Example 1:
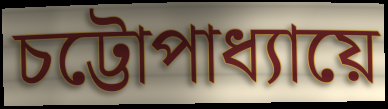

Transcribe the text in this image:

চট্টোপাধ্যায়ে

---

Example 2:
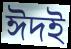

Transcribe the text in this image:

ঈদই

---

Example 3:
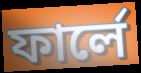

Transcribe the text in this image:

ফার্লে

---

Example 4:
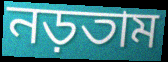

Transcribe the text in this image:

নড়তাম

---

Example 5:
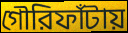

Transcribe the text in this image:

গৌরিফাঁটায়